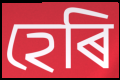
হেৰি